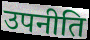
उपनीति